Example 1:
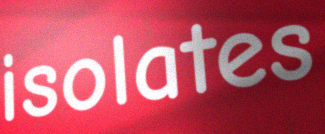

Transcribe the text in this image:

isolates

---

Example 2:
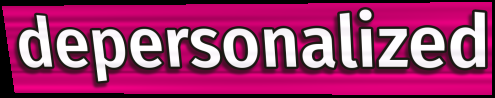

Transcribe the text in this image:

depersonalized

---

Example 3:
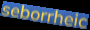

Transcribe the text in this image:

seborrheic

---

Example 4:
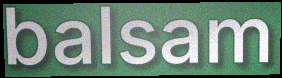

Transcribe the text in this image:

balsam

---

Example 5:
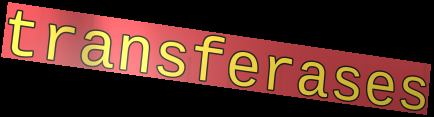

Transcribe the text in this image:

transferases